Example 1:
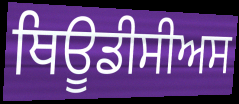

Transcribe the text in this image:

ਥਿਊਡੀਸੀਅਸ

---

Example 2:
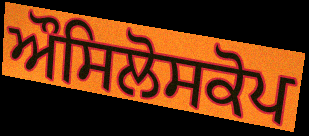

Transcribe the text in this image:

ਔਸਿਲੋਸਕੋਪ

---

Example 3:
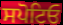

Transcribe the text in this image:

ਸਪੋਟਿਓ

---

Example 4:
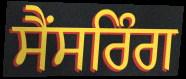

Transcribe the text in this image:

ਸੈਂਸਰਿੰਗ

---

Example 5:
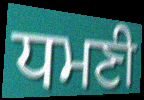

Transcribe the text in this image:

ਧਮਣੀ